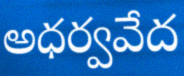
అధర్వవేద